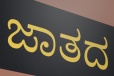
ಜಾತದ